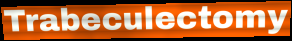
Trabeculectomy